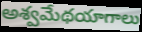
అశ్వమేథయాగాలు